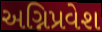
અગ્નિપ્રવેશ